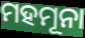
ମହମୂନା